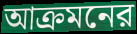
আক্রমনের